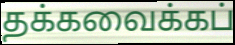
தக்கவைக்கப்